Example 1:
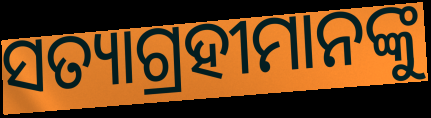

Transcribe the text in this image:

ସତ୍ୟାଗ୍ରହୀମାନଙ୍କୁ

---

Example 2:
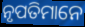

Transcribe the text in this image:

ନୃପତିମାନେ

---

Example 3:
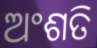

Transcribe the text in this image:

ଅଂଶତି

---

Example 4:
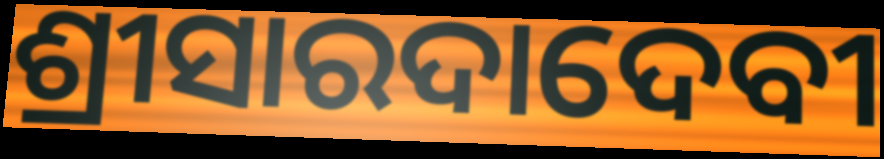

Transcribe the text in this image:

ଶ୍ରୀସାରଦାଦେବୀ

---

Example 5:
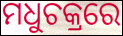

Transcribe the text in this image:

ମଧୁଚକ୍ରରେ